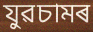
যুৱচামৰ